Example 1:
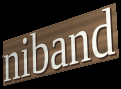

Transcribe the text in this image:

niband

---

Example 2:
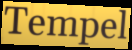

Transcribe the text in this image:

Tempel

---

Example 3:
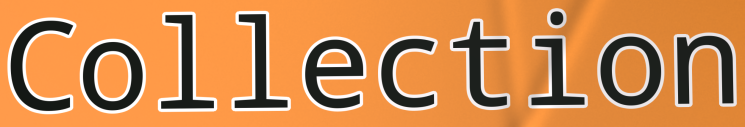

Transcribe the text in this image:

Collection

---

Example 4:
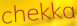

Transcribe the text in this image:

chekka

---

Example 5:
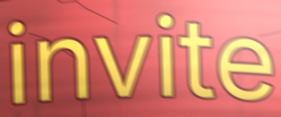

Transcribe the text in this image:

invite